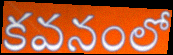
కవనంలో